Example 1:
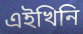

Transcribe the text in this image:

এইখিনি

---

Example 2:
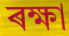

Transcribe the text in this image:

ৰক্ষা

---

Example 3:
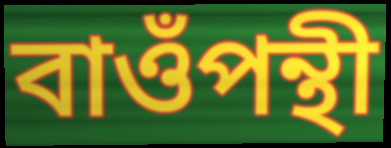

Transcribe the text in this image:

বাওঁপন্থী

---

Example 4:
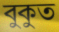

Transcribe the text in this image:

বুকুত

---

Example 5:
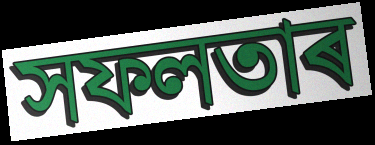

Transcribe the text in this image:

সফলতাৰ